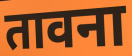
तावना